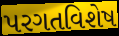
પરગતવિશેષ